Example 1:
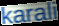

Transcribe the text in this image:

karali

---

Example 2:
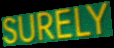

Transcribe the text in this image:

SURELY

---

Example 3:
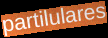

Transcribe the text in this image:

partilulares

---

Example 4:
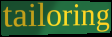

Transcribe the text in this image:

tailoring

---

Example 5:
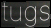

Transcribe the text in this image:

tugs